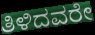
ತಿಳಿದವರೇ